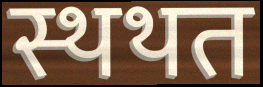
स्थथत